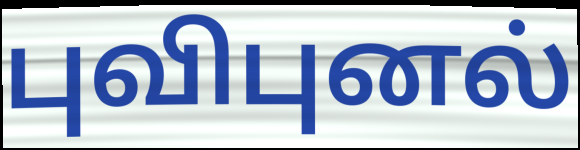
புவிபுனல்